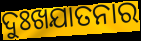
ଦୁଃଖଯାତନାର